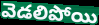
వెడలిపోయి